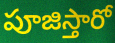
పూజిస్తారో